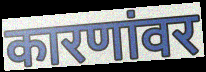
कारणांवर